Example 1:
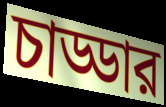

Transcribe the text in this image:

চাড্ডার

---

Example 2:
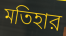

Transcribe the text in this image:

মতিহার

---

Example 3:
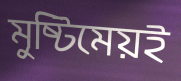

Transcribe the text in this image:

মুষ্টিমেয়ই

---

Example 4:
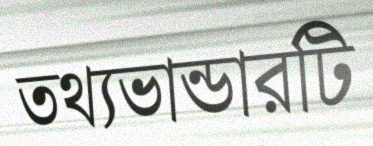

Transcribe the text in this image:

তথ্যভান্ডারটি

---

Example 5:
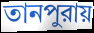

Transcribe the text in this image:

তানপুরায়